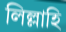
লিল্লাহি